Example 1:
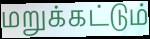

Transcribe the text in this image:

மறுக்கட்டும்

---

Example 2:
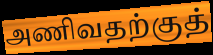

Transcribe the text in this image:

அணிவதற்குத்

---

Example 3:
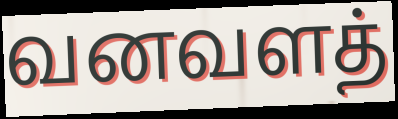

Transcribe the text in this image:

வனவளத்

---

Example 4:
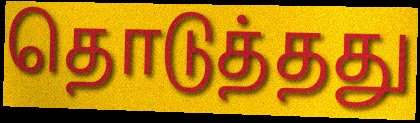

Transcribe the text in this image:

தொடுத்தது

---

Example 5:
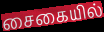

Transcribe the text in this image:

சைகையில்